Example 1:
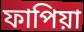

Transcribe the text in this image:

ফাপিয়া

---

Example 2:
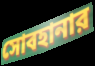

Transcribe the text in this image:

সোবহানার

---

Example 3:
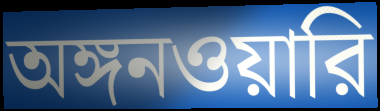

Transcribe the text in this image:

অঙ্গনওয়ারি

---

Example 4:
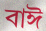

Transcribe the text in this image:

বাঈ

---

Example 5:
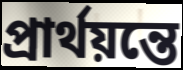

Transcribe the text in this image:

প্রার্থয়ন্তে